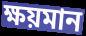
ক্ষয়মান